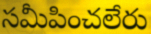
సమీపించలేరు